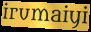
irumaiyi